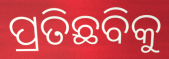
ପ୍ରତିଛବିକୁ